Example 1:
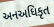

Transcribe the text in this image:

અનઅધિકૃત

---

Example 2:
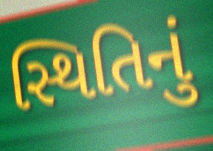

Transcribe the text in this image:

સ્થિતિનું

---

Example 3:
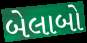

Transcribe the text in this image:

બેલાબો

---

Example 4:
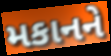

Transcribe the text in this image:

મકાનને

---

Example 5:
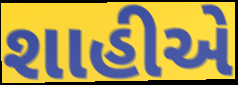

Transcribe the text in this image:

શાહીએ